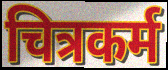
चित्रकर्म